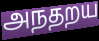
அநதறய